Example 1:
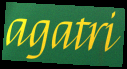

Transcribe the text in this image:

agatri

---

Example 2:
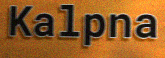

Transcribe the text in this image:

Kalpna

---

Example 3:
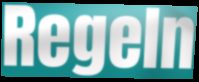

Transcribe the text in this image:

Regeln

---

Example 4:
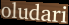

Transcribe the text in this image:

oludari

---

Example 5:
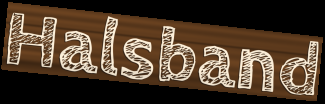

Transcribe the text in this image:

Halsband